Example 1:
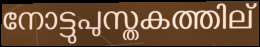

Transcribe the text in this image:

നോട്ടുപുസ്തകത്തില്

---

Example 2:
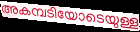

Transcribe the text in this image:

അകമ്പടിയോടെയുള്ള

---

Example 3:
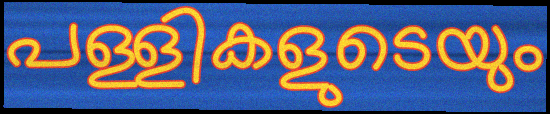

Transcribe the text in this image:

പള്ളികളുടെയും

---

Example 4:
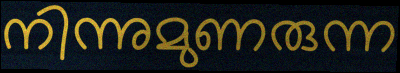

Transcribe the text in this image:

നിന്നുമുണരുന്ന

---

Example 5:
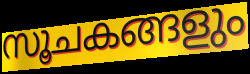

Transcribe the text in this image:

സൂചകങ്ങളും